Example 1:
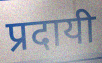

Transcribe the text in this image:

प्रदायी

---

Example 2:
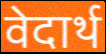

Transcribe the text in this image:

वेदार्थ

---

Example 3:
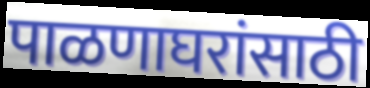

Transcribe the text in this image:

पाळणाघरांसाठी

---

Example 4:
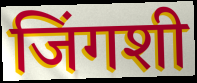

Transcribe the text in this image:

जिंगशी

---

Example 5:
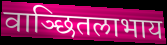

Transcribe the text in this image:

वाञ्छितलाभाय